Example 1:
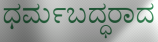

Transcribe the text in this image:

ಧರ್ಮಬದ್ಧರಾದ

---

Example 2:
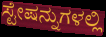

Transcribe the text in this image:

ಸ್ಟೇಷನ್ನುಗಳಲ್ಲಿ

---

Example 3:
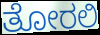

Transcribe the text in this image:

ತೋರಲಿ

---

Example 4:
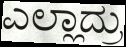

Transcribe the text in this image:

ಎಲ್ಲಾದ್ರು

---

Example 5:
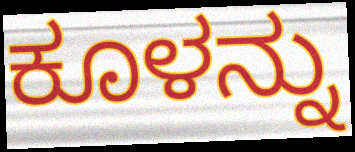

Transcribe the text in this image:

ಕೂಳನ್ನು